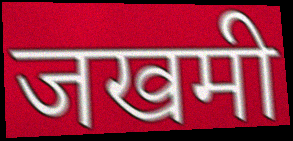
जखमी